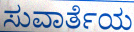
ಸುವಾರ್ತೆಯ